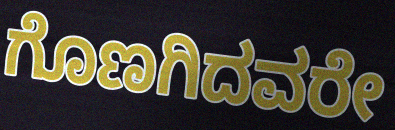
ಗೊಣಗಿದವರೇ